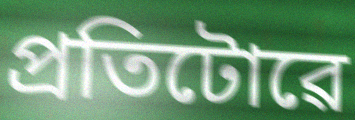
প্ৰতিটোৱে